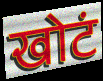
खोटं